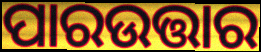
ପାରଉତ୍ତାର